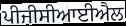
ਪੀਜੀਸੀਆਈਐਲ